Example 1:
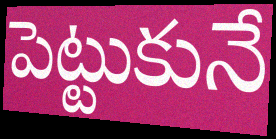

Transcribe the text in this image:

పెట్టుకునే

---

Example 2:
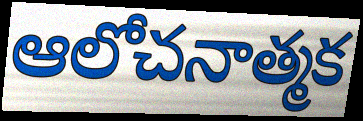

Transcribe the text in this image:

ఆలోచనాత్మక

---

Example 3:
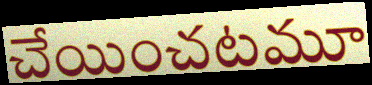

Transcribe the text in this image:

చేయించటమూ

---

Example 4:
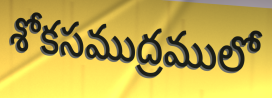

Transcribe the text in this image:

శోకసముద్రములో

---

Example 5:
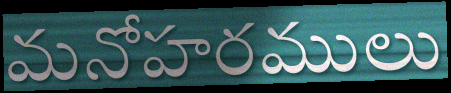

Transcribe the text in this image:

మనోహరములు